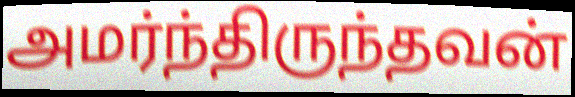
அமர்ந்திருந்தவன்